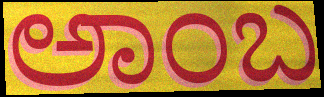
ಅಾಂಬ